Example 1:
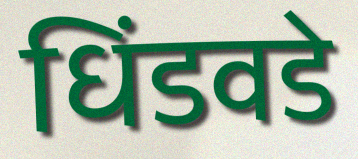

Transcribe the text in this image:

धिंडवडे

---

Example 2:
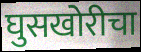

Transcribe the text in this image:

घुसखोरीचा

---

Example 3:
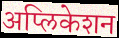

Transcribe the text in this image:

अप्लिकेशन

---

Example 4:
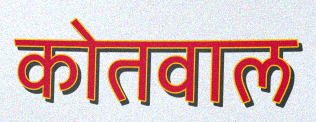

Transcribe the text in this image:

कोतवाल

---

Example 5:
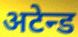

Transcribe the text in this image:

अटेन्ड